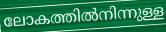
ലോകത്തിൽനിന്നുള്ള